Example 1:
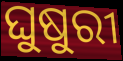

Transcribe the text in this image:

ଘୁଷୁରୀ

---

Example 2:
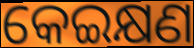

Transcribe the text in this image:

କେଇକ୍ଷଣ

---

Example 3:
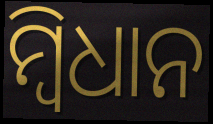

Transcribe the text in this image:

ମ୍ବିଧାନ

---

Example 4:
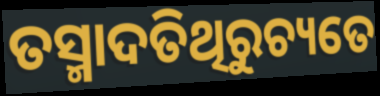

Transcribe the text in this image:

ତସ୍ମାଦତିଥିରୁଚ୍ୟତେ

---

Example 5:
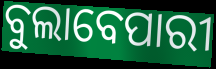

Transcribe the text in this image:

ବୁଲାବେପାରୀ